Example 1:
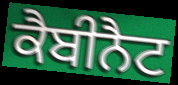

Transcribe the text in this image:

ਕੈਬੀਨੈਟ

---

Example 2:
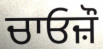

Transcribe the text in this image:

ਚਾਓਜ਼ੌ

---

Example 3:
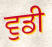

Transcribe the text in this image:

ਵੁਡੀ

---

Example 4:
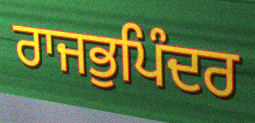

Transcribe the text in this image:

ਰਾਜਭੁਪਿੰਦਰ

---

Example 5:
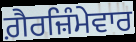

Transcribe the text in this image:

ਗ਼ੈਰਜ਼ਿੰਮੇਵਾਰ